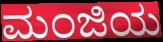
ಮಂಜಿಯ